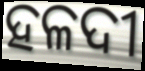
ହଳଦୀ